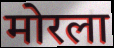
मोरला